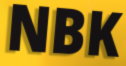
NBK